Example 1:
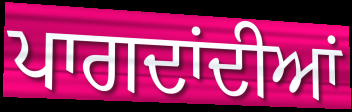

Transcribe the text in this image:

ਪਾਗਦਾਂਦੀਆਂ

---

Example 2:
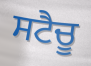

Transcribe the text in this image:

ਸਟੈਚੂ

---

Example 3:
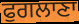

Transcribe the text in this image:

ਫੁਗਲਾਣਾ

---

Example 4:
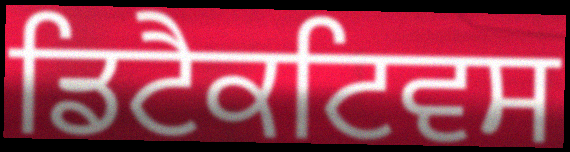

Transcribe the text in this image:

ਡਿਟੈਕਟਿਵਸ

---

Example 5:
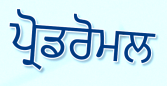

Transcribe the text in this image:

ਪ੍ਰੋਡਰੋਮਲ